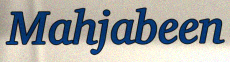
Mahjabeen